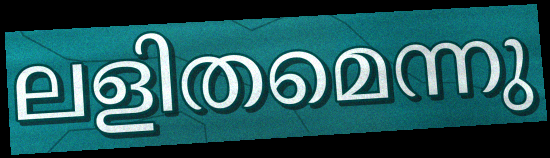
ലളിതമെന്നു